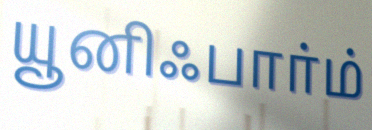
யூனிஃபார்ம்